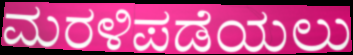
ಮರಳಿಪಡೆಯಲು